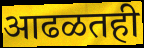
आढळतही